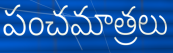
పంచమాత్రలు